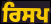
ਰਿਸਪ